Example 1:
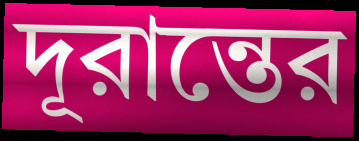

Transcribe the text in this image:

দূরান্তের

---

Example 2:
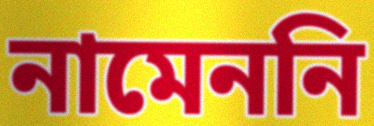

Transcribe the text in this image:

নামেননি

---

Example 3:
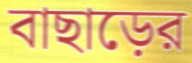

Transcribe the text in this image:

বাছাড়ের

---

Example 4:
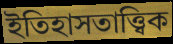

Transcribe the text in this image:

ইতিহাসতাত্ত্বিক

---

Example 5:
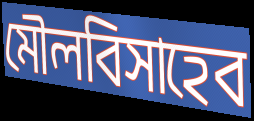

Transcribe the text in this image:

মৌলবিসাহেব